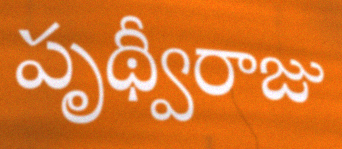
పృథ్వీరాజు